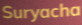
Suryacha